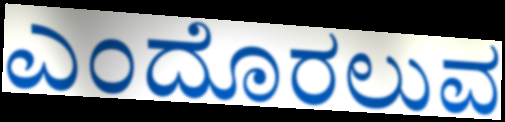
ಎಂದೊರಲುವ